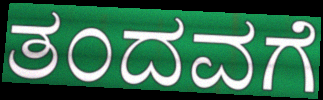
ತಂದವಗೆ